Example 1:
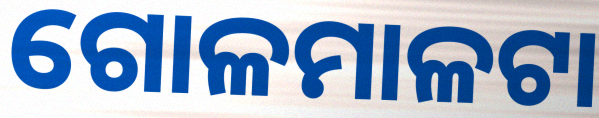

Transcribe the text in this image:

ଗୋଳମାଳଟା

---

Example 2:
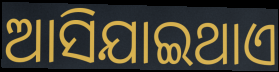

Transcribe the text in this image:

ଆସିଯାଇଥାଏ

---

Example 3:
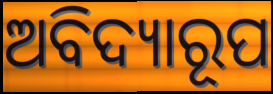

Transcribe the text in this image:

ଅବିଦ୍ୟାରୂପ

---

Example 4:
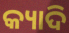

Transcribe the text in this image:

କ୍ୟାଦି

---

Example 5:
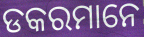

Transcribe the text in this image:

ଡକରମାନେ